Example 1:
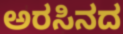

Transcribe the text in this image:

ಅರಸಿನದ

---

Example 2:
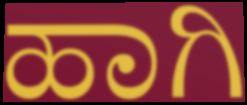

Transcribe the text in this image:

ಹಾಗಿ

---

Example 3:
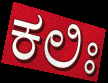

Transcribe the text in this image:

ಕಲಿಃ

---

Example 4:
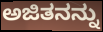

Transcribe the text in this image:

ಅಜಿತನನ್ನು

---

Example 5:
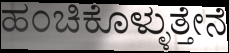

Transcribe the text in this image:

ಹಂಚಿಕೊಳ್ಳುತ್ತೇನೆ